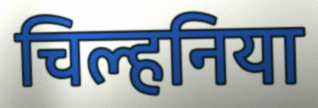
चिल्हनिया